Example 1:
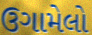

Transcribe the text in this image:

ઉગામેલો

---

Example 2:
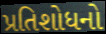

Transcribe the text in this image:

પ્રતિશોધનો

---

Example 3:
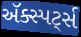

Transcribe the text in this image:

ઍક્સ્પર્ટ્સ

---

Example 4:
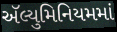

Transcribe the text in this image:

ઍલ્યુમિનિયમમાં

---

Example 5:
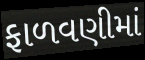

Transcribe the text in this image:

ફાળવણીમાં